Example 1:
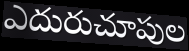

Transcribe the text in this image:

ఎదురుచూపుల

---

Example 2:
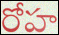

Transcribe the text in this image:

రోహ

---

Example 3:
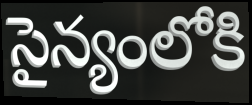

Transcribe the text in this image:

సైన్యంలోకి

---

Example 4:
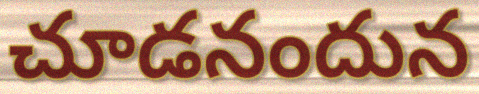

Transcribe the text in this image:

చూడనందున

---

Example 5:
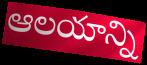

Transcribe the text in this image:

ఆలయాన్ని